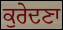
ਕੁਰੇਦਣਾ